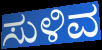
ಸುಳಿವ